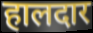
हालदार